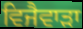
ਵਿਜੈਵਾੜਾ